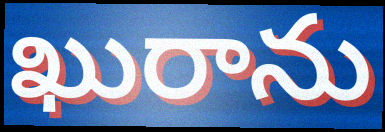
ఖురాను